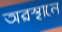
অৱস্থানে